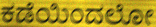
ಕಡೆಯಿಂದಲೋ